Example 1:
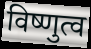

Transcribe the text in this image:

विष्णुत्व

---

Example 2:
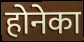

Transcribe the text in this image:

होनेका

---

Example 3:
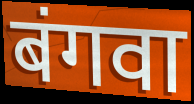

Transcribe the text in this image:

बंगवा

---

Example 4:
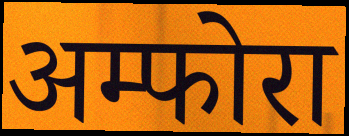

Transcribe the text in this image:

अम्फोरा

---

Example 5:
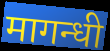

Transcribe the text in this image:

मागन्धी